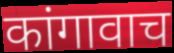
कांगावाच